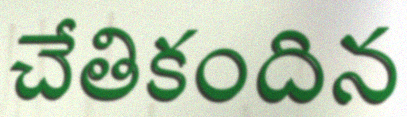
చేతికందిన